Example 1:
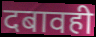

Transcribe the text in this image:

दबावही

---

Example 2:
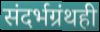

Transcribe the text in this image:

संदर्भग्रंथही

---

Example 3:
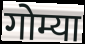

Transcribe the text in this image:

गोम्या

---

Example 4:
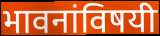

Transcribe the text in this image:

भावनांविषयी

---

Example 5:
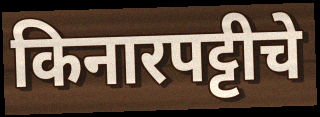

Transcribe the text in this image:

किनारपट्टीचे